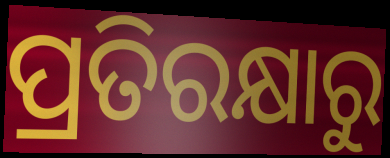
ପ୍ରତିରକ୍ଷାରୁ